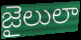
జైలులా